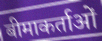
बीमाकर्ताओं